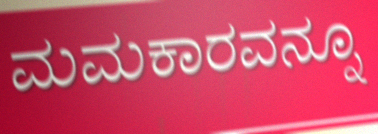
ಮಮಕಾರವನ್ನೂ